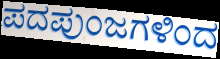
ಪದಪುಂಜಗಳಿಂದ